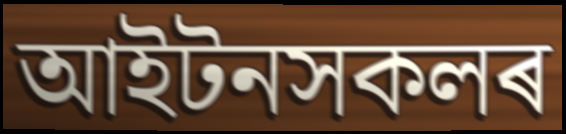
আইটনসকলৰ